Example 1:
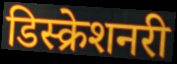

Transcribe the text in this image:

डिस्क्रेशनरी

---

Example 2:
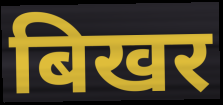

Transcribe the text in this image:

बिखर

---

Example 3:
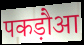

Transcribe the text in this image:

पकड़ौआ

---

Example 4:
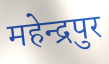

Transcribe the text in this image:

महेन्द्रपुर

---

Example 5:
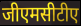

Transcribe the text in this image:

जीएमसीटीए